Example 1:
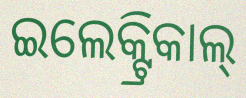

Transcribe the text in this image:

ଇଲେକ୍ଟ୍ରିକାଲ୍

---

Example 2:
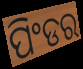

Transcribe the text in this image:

ପିଂଡର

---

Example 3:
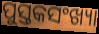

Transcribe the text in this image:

ପୁସ୍ତକସଂଖ୍ୟା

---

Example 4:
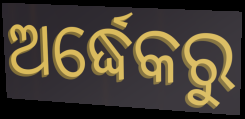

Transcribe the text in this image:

ଅର୍ଦ୍ଧେକରୁ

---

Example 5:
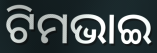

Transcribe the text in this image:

ଟିମଭାଇ